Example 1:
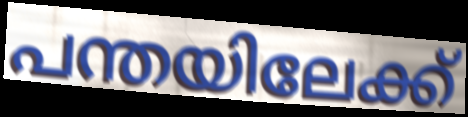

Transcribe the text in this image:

പന്തയിലേക്ക്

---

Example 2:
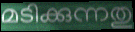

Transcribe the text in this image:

മടിക്കുന്നതു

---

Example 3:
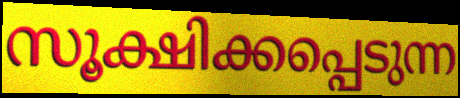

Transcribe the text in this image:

സൂക്ഷിക്കപ്പെടുന്ന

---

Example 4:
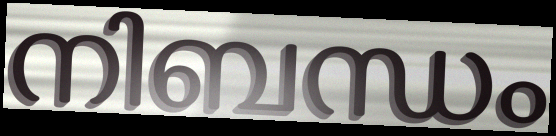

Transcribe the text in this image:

നിബന്ധം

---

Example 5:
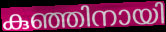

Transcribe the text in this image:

കുഞ്ഞിനായി